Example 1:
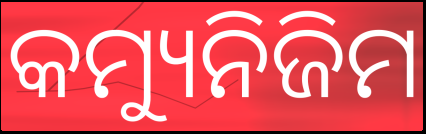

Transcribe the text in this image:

କମ୍ୟୁନିଜିମ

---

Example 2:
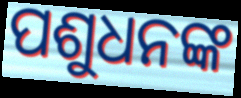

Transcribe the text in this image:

ପଶୁଧନଙ୍କ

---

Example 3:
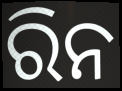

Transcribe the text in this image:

ରିନ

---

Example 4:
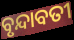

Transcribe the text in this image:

ବୃନ୍ଦାବତୀ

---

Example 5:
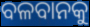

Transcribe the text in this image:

ବଳବାନକୁ